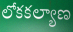
లోకకల్యాణ